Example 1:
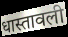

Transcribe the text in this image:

धास्तावली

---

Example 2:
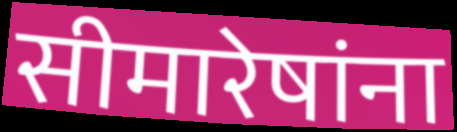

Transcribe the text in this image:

सीमारेषांना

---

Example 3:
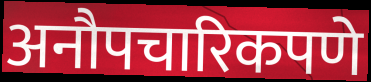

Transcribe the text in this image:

अनौपचारिकपणे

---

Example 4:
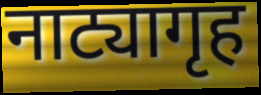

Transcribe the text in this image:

नाट्यागृह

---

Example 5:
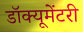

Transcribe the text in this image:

डॉक्यूमेंटरी